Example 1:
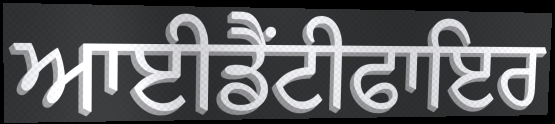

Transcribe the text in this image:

ਆਈਡੈਂਟੀਫਾਇਰ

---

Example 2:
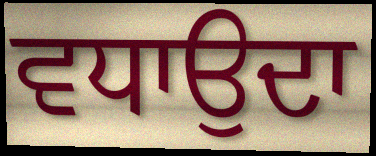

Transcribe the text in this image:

ਵਧਾਉਦਾ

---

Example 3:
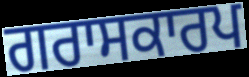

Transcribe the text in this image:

ਗਰਾਸਕਾਰਪ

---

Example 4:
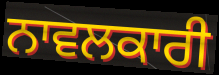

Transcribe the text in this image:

ਨਾਵਲਕਾਰੀ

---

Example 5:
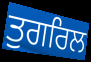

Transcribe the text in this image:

ਤੁਗਰਿਲ